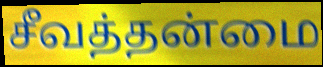
சீவத்தன்மை